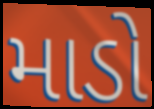
માડો